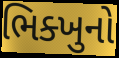
ભિક્ખુનો